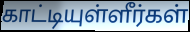
காட்டியுள்ளீர்கள்